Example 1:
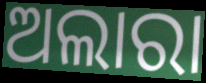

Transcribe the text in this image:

ଅଲାରା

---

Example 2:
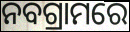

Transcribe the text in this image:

ନବଗ୍ରାମରେ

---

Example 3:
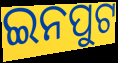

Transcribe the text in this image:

ଇନପୁଟ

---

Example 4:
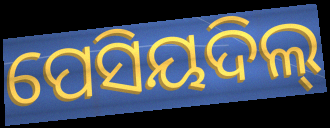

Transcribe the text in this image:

ପେସିୟଦିଲ୍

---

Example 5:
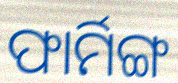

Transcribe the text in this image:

ଫାର୍ମିଙ୍ଗ